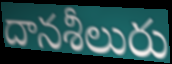
దానశీలురు